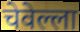
चेवेल्ला